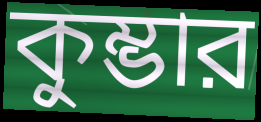
কুম্ভার